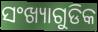
ସଂଖ୍ୟାଗୁଡିକ